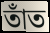
তাঁত